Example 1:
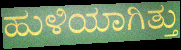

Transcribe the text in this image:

ಹುಳಿಯಾಗಿತ್ತು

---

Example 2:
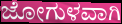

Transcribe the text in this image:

ಜೋಗುಳವಾಗಿ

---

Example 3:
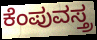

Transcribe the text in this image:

ಕೆಂಪುವಸ್ತ್ರ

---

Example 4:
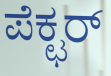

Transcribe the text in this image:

ಪೆಕ್ಟರ್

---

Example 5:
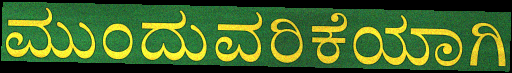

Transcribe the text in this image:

ಮುಂದುವರಿಕೆಯಾಗಿ